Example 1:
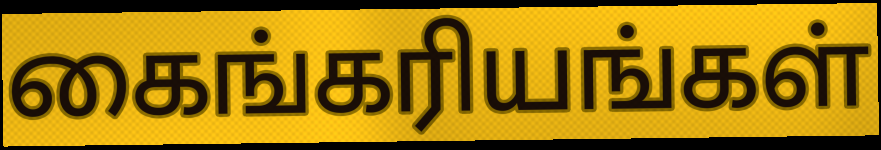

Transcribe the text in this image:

கைங்கரியங்கள்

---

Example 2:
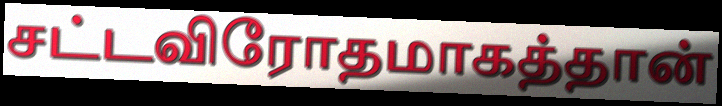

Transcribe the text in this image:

சட்டவிரோதமாகத்தான்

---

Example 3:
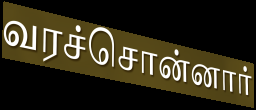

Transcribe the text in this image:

வரச்சொன்னார்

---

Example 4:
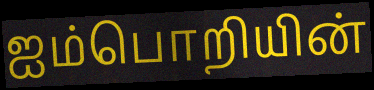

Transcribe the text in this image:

ஐம்பொறியின்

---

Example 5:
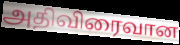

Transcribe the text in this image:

அதிவிரைவான